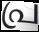
പ്ര